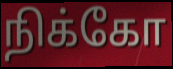
நிக்கோ